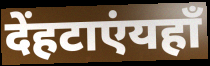
देंहटाएंयहाँ